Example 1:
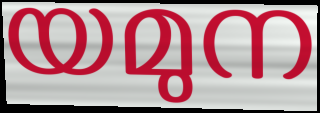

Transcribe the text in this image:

യമുന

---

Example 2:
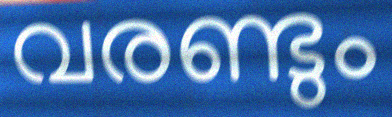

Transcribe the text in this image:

വരണ്ടും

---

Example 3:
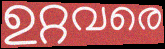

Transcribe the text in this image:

ഉറ്റവരെ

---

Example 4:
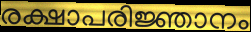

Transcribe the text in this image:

രക്ഷാപരിജ്ഞാനം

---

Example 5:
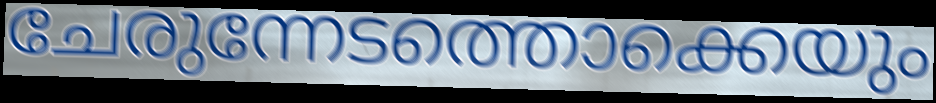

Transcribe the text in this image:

ചേരുന്നേടത്തൊക്കെയും